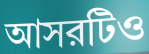
আসরটিও